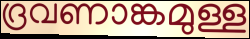
ദ്രവണാങ്കമുള്ള